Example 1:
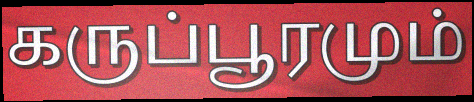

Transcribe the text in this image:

கருப்பூரமும்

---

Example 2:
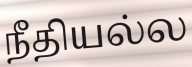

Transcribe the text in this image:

நீதியல்ல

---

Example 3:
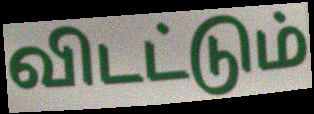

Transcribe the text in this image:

விடட்டும்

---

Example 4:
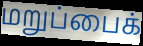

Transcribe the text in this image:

மறுப்பைக்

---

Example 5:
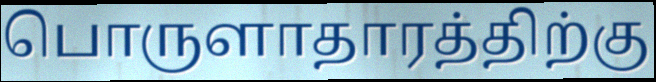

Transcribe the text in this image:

பொருளாதாரத்திற்கு